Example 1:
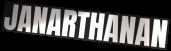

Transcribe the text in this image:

JANARTHANAN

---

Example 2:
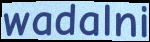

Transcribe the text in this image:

wadalni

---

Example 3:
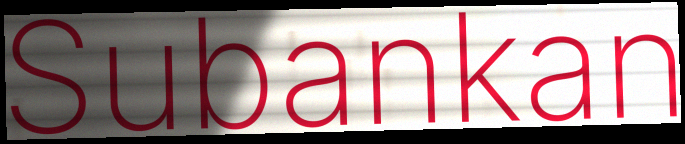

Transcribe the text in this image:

Subankan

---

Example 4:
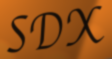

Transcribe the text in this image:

SDX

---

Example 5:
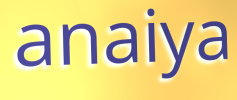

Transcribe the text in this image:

anaiya